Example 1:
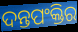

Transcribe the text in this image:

ଦନ୍ତପଂକ୍ତିର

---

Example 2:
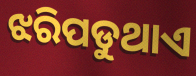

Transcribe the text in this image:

ଝରିପଡୁଥାଏ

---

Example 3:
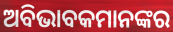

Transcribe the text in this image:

ଅବିଭାବକମାନଙ୍କର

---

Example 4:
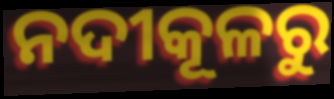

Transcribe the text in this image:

ନଦୀକୂଳରୁ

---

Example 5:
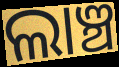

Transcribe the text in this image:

ଲାଞ୍ଚ